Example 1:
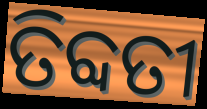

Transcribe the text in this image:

ତିବ୍ଦତୀ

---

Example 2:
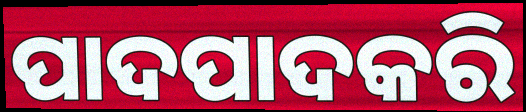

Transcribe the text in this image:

ପାଦପାଦକରି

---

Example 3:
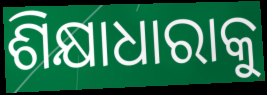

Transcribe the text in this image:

ଶିକ୍ଷାଧାରାକୁ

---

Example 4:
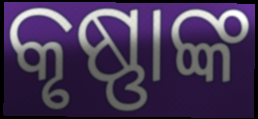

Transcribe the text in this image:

କୃଷ୍ଣାଙ୍କ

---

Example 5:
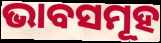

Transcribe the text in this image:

ଭାବସମୂହ